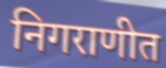
निगराणीत